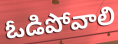
ఓడిపోవాలి